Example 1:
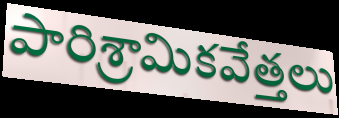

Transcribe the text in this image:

పారిశ్రామికవేత్తలు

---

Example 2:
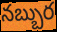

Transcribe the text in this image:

నబ్బుర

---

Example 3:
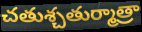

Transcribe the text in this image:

చతుశ్చతుర్మాత్రా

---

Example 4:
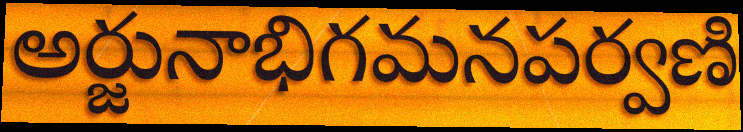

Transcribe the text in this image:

అర్జునాభిగమనపర్వణి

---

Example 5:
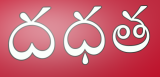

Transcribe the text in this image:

దధత